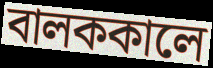
বালককালে